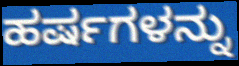
ಹರ್ಷಗಳನ್ನು